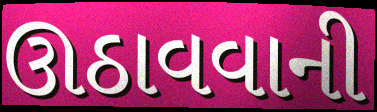
ઊઠાવવાની